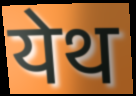
येथ